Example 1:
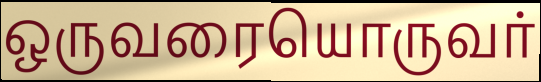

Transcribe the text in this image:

ஒருவரையொருவர்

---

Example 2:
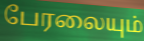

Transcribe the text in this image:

பேரலையும்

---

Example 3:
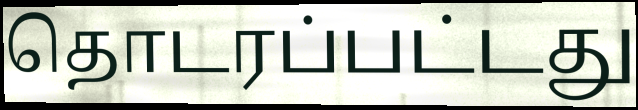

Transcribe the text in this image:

தொடரப்பட்டது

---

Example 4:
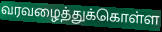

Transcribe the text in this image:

வரவழைத்துக்கொள்ள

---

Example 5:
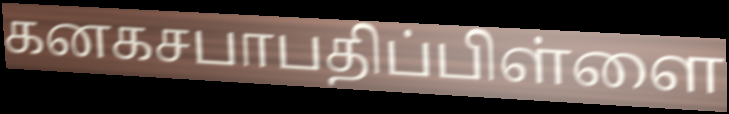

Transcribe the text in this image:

கனகசபாபதிப்பிள்ளை